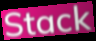
Stack